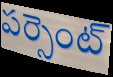
పర్సెంట్